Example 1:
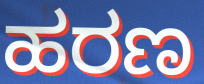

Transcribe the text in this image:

ಹರಣ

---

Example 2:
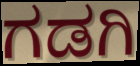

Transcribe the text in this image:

ಗಡಗಿ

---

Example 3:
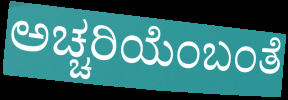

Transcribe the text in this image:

ಅಚ್ಚರಿಯೆಂಬಂತೆ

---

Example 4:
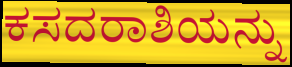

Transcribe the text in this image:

ಕಸದರಾಶಿಯನ್ನು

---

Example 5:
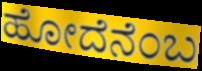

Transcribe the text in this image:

ಹೋದೆನೆಂಬ